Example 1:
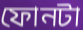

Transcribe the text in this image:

ফোনটা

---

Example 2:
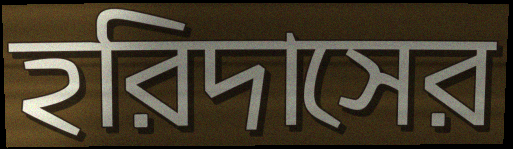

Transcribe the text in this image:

হরিদাসের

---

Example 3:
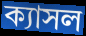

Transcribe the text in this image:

ক্যাসল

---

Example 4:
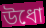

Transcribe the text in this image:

উধো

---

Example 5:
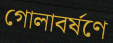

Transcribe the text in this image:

গোলাবর্ষণে